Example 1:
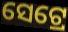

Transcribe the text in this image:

ସେଟ୍ରେ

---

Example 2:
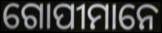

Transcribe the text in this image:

ଗୋପୀମାନେ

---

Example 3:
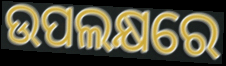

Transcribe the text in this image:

ଉପଲକ୍ଷରେ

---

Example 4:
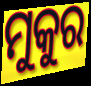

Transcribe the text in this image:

ମୁକୁର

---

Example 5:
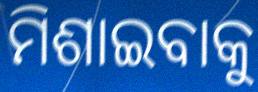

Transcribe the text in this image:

ମିଶାଇବାକୁ